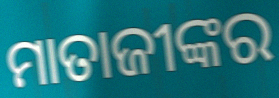
ମାତାଜୀଙ୍କର